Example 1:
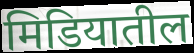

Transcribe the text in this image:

मिडियातील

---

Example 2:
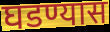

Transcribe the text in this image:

घडण्यास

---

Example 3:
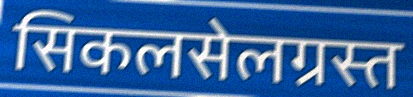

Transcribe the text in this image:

सिकलसेलग्रस्त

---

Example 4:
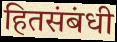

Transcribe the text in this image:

हितसंबंधी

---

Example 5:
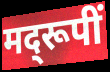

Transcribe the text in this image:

मद्‌रूपीं